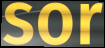
sor